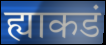
ह्याकडं